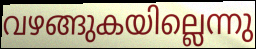
വഴങ്ങുകയില്ലെന്നു